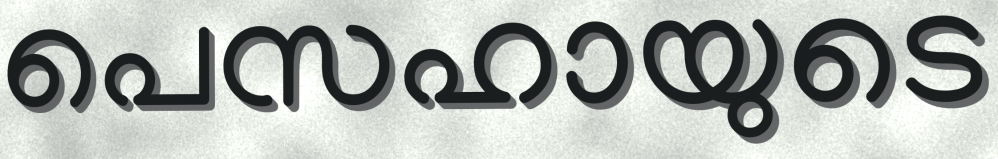
പെസഹായുടെ